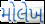
મોલેખ